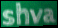
shva